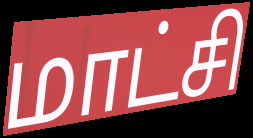
மாட்சி